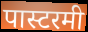
पास्टरमी